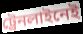
ট্রেনলাইনেই